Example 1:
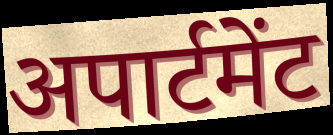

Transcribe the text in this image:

अपार्टमेंट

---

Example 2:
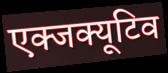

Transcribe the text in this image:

एक्जक्यूटिव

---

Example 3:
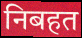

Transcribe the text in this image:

निबहत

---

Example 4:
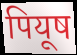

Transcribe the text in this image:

पियूष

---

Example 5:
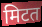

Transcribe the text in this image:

मिटत